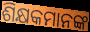
ଶିକ୍ଷକମାନଙ୍କ